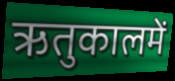
ऋतुकालमें